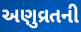
અણુવ્રતની